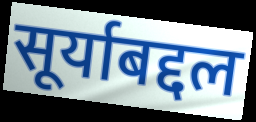
सूर्याबद्दल